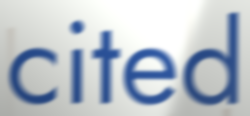
cited